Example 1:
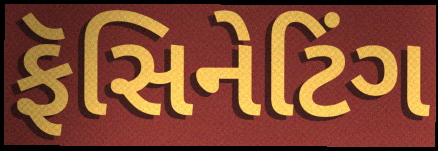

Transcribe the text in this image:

ફૅસિનેટિંગ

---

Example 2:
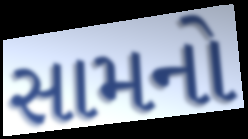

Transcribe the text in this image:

સામનો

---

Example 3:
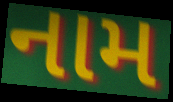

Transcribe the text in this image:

નામ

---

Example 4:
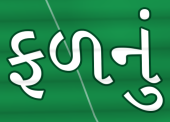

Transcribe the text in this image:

ફળનું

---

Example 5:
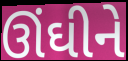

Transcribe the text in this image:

ઊંઘીને